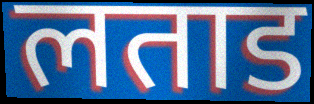
लताड